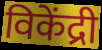
विकेंद्री